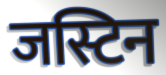
जस्टिन